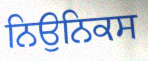
ਨਿਉਨਿਕਸ